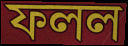
ফলল